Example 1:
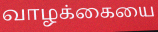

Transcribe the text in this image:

வாழக்கையை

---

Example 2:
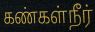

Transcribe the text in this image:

கண்கள்நீர்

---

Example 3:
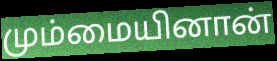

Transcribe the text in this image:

மும்மையினான்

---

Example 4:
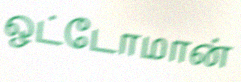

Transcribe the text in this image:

ஒட்டோமான்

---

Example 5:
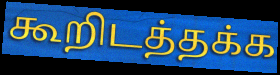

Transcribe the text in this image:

கூறிடத்தக்க